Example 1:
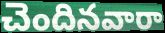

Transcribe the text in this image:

చెందినవారా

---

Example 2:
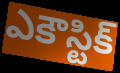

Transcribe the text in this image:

ఎకౌస్టిక్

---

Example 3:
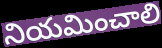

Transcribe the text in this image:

నియమించాలి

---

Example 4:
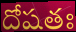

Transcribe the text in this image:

దోషతః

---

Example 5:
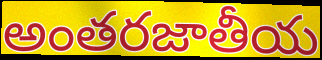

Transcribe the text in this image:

అంతరజాతీయ